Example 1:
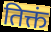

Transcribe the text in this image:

तिक्तं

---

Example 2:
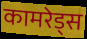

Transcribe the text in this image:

कामरेड्स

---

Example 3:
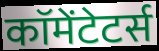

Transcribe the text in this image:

कॉमेंटेटर्स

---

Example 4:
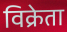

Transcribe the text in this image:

विक्रेता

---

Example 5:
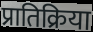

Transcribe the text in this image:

प्रातिक्रिया